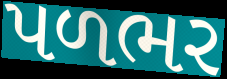
પળભર